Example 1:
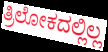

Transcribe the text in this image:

ತ್ರಿಲೋಕದಲ್ಲಿಲ್ಲ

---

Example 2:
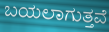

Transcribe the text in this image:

ಬಯಲಾಗುತ್ತವೆ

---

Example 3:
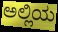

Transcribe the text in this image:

ಅಲ್ಲಿಯ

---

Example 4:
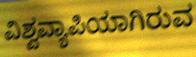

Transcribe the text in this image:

ವಿಶ್ವವ್ಯಾಪಿಯಾಗಿರುವ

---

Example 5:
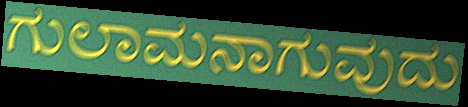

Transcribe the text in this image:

ಗುಲಾಮನಾಗುವುದು